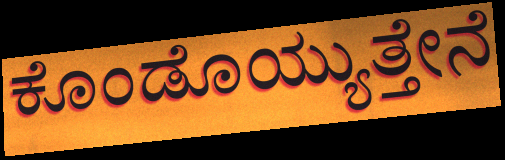
ಕೊಂಡೊಯ್ಯುತ್ತೇನೆ